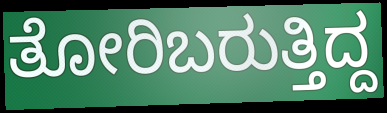
ತೋರಿಬರುತ್ತಿದ್ದ